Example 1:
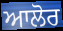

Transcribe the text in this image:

ਆਲੋਰ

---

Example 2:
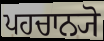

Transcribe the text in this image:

ਪਹਚਾਨ੍ਯੋ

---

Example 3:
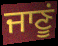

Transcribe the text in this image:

ਜਾਣੂਂ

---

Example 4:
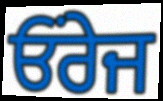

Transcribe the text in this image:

ਓਂਰੇਜ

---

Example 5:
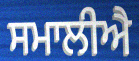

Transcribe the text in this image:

ਸਮਾਲੀਐ